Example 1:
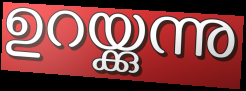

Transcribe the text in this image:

ഉറയ്ക്കുന്നു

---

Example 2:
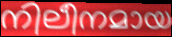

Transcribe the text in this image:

നിലീനമായ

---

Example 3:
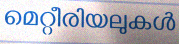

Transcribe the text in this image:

മെറ്റീരിയലുകൾ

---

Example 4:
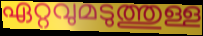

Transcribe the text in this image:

ഏറ്റവുമടുത്തുള്ള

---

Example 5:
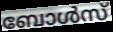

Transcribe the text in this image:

ബോൾസ്